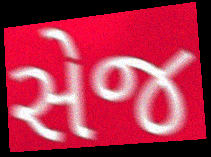
સેજ